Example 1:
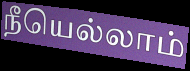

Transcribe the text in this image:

நீயெல்லாம்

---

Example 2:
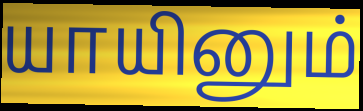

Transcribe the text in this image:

யாயினும்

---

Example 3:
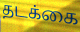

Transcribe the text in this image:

தடக்கை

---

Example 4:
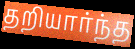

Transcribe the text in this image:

தறியார்ந்த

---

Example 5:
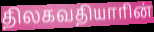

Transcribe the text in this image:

திலகவதியாரின்